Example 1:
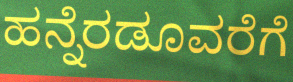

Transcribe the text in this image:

ಹನ್ನೆರಡೂವರೆಗೆ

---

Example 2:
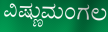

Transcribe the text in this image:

ವಿಷ್ಣುಮಂಗಲ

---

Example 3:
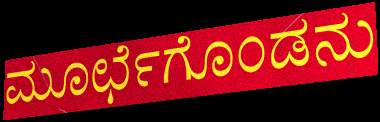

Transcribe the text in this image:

ಮೂರ್ಛೆಗೊಂಡನು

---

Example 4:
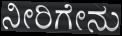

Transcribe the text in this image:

ನೀರಿಗೇನು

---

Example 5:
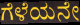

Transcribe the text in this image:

ಗೆಳೆಯನೇ